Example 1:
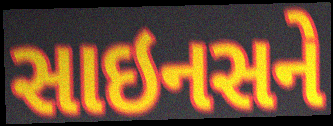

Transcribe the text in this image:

સાઇનસને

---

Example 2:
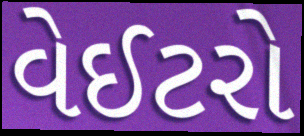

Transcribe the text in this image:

વેઈટરો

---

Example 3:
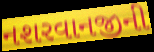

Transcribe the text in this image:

નશરવાનજીની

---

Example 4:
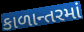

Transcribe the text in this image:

કાળાન્તરમાં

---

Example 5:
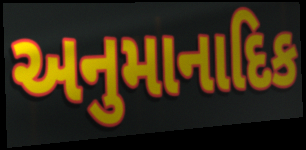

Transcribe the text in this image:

અનુમાનાદિક